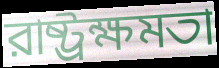
রাষ্ট্রক্ষমতা